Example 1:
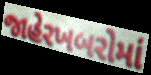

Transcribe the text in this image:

જાહેરખબરોમાં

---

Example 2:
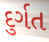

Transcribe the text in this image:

દુર્ગત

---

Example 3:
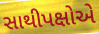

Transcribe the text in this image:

સાથીપક્ષોએ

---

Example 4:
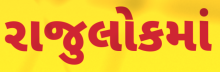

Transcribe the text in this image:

રાજુલોકમાં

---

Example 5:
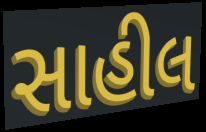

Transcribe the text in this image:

સાહીલ